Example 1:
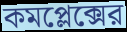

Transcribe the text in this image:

কমপ্লেক্সের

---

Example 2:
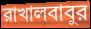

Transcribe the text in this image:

রাখালবাবুর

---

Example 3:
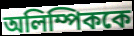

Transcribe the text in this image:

অলিম্পিককে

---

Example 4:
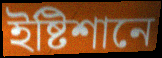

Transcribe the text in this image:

ইষ্টিশানে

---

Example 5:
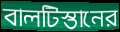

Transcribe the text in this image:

বালটিস্তানের